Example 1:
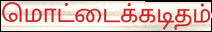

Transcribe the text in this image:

மொட்டைக்கடிதம்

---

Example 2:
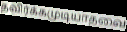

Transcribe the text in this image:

தவிர்க்கமுடியாதவை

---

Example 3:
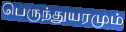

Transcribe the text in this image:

பெருந்துயரமும்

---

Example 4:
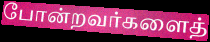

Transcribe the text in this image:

போன்றவர்களைத்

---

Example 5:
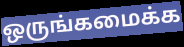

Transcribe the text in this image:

ஒருங்கமைக்க